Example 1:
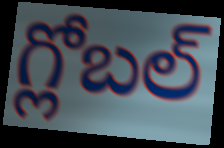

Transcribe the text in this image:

గ్లోబల్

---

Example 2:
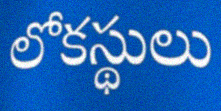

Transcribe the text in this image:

లోకస్థులు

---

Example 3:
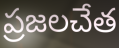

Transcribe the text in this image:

ప్రజలచేత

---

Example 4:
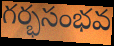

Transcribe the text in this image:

గర్భసంభవ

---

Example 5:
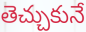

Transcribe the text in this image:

తెచ్చుకునే